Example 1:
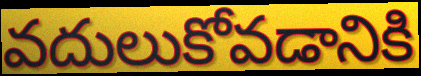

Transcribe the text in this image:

వదులుకోవడానికి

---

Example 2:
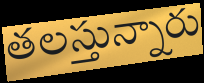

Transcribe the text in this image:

తలస్తున్నారు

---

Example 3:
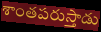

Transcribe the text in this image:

శాంతపరుస్తాడు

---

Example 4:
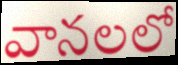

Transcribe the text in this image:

వానలలో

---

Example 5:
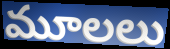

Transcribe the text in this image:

మూలలు